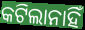
କଟିଲାନାହିଁ